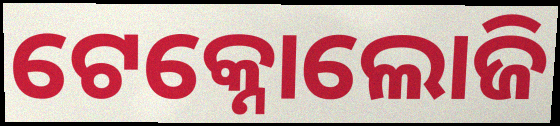
ଟେକ୍ନୋଲୋଜି